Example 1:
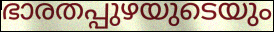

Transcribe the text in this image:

ഭാരതപ്പുഴയുടെയും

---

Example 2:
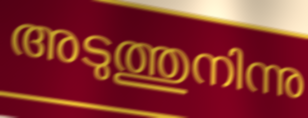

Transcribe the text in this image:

അടുത്തുനിന്നു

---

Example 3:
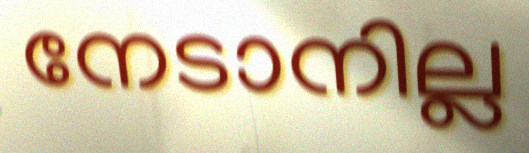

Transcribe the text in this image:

നേടാനില്ല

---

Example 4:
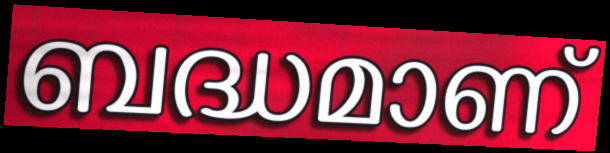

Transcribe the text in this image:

ബദ്ധമാണ്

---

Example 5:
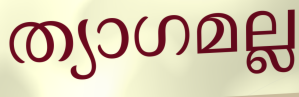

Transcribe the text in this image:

ത്യാഗമല്ല